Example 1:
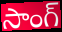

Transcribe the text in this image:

సాంగ్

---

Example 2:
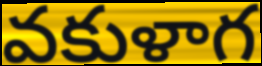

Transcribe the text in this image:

వకుళాగ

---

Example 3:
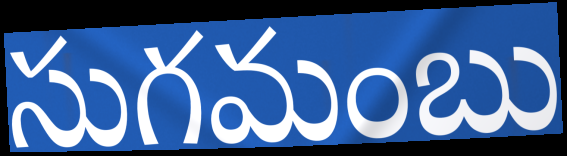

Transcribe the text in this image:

సుగమంబు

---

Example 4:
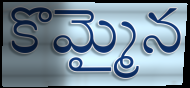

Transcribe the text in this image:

కొమ్మైన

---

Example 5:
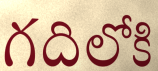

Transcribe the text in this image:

గదిలోకి